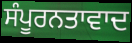
ਸੰਪੂਰਨਤਾਵਾਦ